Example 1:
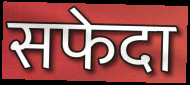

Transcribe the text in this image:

सफेदा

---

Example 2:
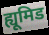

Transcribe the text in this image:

ह्यूमिड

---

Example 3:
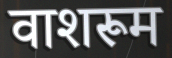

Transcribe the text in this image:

वाशरूम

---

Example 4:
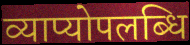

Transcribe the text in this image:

व्याप्योपलब्धि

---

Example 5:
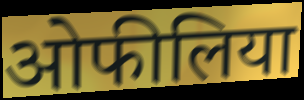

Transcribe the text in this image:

ओफीलिया